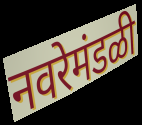
नवरेमंडळी